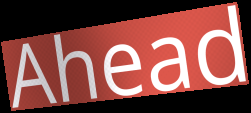
Ahead